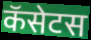
कॅसेटस